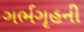
ગર્ભગૃહની